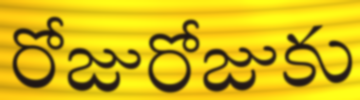
రోజురోజుకు